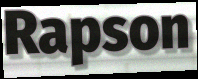
Rapson